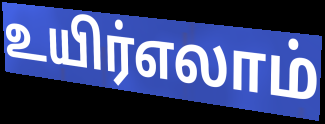
உயிர்எலாம்